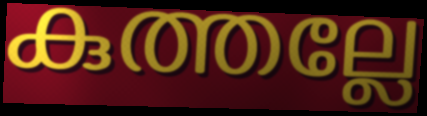
കുത്തല്ലേ